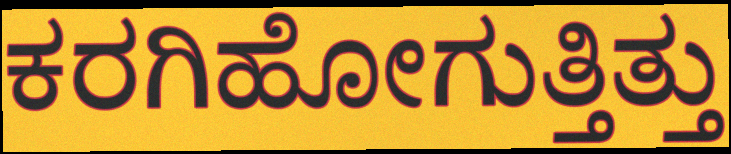
ಕರಗಿಹೋಗುತ್ತಿತ್ತು